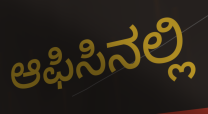
ಆಫಿಸಿನಲ್ಲಿ